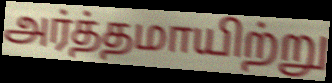
அர்த்தமாயிற்று